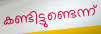
കണ്ടിട്ടുണ്ടെന്ന്